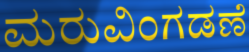
ಮರುವಿಂಗಡಣೆ